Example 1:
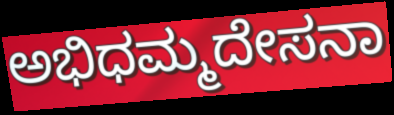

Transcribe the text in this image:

ಅಭಿಧಮ್ಮದೇಸನಾ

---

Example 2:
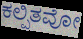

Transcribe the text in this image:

ಕಲ್ಪಿತವೋ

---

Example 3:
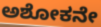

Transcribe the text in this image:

ಅಶೋಕನೇ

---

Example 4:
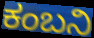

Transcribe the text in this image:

ಕಂಬನಿ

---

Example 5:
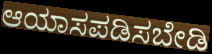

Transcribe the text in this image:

ಆಯಾಸಪಡಿಸಬೇಡಿ